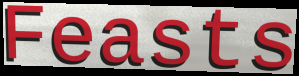
Feasts